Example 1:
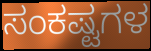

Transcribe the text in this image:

ಸಂಕಷ್ಟಗಳ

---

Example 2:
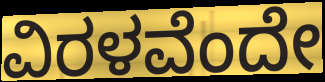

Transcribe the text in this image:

ವಿರಳವೆಂದೇ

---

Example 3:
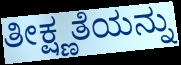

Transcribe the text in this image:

ತೀಕ್ಷ್ಣತೆಯನ್ನು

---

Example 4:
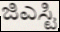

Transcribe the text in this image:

ಜಿಎಸ್ಟಿ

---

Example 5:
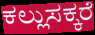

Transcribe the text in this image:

ಕಲ್ಲುಸಕ್ಕರೆ